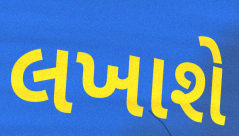
લખાશે